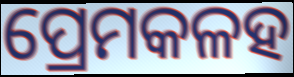
ପ୍ରେମକଳହ